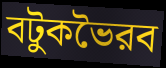
বটুকভৈরব